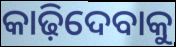
କାଢ଼ିଦେବାକୁ